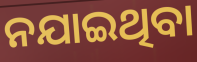
ନଯାଇଥିବା